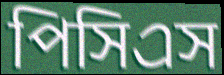
পিসিএস